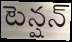
టెన్షన్